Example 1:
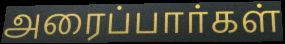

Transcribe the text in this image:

அரைப்பார்கள்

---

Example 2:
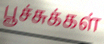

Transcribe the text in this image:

பூச்சுக்கள்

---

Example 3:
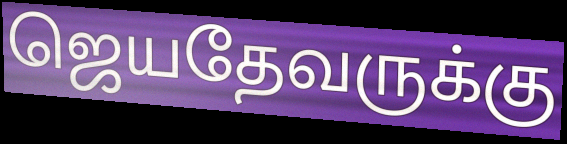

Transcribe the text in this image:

ஜெயதேவருக்கு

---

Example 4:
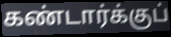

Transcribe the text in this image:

கண்டார்க்குப்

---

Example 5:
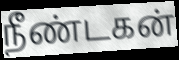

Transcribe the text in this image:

நீண்டகன்